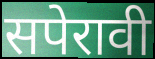
सपेरावी